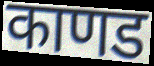
काणड